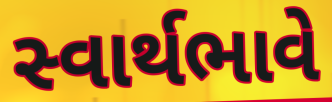
સ્વાર્થભાવે